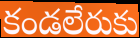
కండలేరుకు